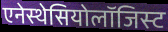
एनेस्थेसियोलॉजिस्ट